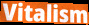
Vitalism